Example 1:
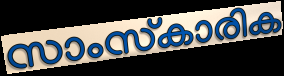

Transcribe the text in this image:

സാംസ്‌കാരിക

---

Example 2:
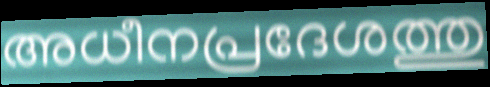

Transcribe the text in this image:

അധീനപ്രദേശത്തു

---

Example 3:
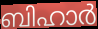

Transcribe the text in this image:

ബിഹാർ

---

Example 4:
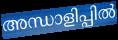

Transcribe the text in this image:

അന്ധാളിപ്പിൽ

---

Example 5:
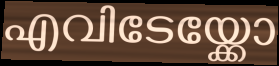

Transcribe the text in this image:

എവിടേയ്ക്കോ